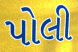
પોલી